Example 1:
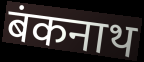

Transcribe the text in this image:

बंकनाथ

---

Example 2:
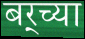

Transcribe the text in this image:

बर्च्या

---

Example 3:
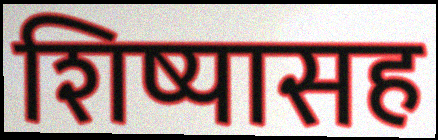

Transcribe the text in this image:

शिष्यासह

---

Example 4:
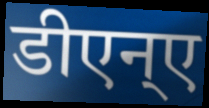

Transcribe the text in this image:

डीएन्ए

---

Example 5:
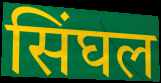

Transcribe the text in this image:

सिंघल